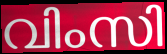
വിംസി